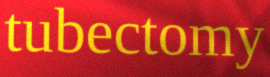
tubectomy